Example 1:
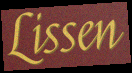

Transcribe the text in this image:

Lissen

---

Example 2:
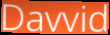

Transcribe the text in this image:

Davvid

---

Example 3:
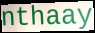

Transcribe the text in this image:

nthaay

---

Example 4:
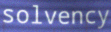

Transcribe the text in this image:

solvency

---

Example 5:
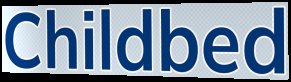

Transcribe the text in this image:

Childbed